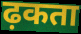
ढ़कता